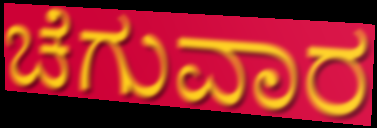
ಚೆಗುವಾರ